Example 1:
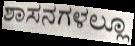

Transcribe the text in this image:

ಶಾಸನಗಳಲ್ಲೂ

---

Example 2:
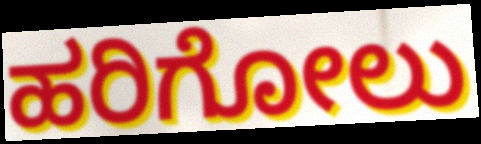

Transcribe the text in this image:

ಹರಿಗೋಲು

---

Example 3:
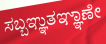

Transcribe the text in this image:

ಸಬ್ಬಞ್ಞುತಞ್ಞಾಣೇ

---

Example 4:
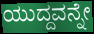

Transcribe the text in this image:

ಯುದ್ದವನ್ನೇ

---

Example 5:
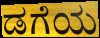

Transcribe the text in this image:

ಡಗೆಯ